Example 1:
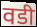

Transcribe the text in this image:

वडी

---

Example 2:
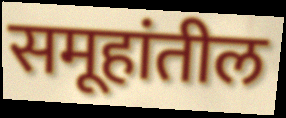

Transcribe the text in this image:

समूहांतील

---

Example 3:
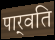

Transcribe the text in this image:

पार्वति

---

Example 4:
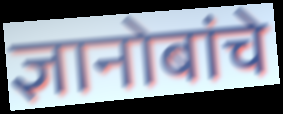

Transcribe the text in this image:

ज्ञानोबांचे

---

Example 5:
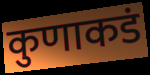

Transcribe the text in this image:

कुणाकडं